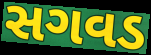
સગવડ